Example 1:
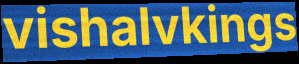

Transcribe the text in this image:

vishalvkings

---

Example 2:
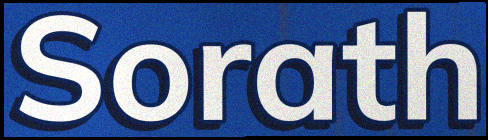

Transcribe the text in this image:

Sorath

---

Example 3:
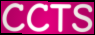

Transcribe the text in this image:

CCTS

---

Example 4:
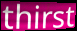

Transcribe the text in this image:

thirst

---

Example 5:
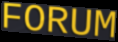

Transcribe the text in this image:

FORUM